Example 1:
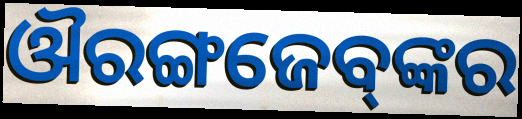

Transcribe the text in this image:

ଔରଙ୍ଗଜେବ୍‌ଙ୍କର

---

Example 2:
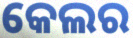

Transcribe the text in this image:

କେଲର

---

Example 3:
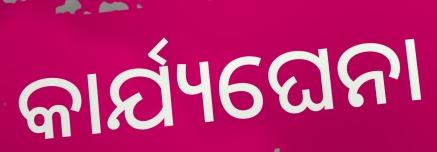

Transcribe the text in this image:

କାର୍ଯ୍ୟଘେନା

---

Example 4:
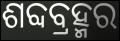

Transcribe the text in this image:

ଶବ୍ଦବ୍ରହ୍ମର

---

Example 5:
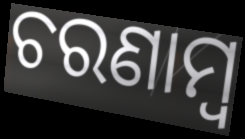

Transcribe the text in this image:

ଚରଣାମ୍ବ